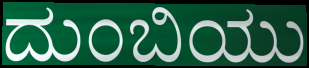
ದುಂಬಿಯು